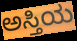
ಅಸ್ತಿಯ